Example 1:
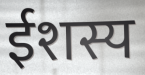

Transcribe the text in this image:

ईशस्य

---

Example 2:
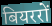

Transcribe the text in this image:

बियररों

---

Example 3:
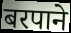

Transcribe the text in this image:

बरपाने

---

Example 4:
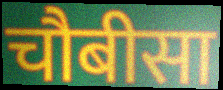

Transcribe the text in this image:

चौबीसा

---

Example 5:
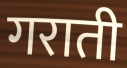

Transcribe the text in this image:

गराती